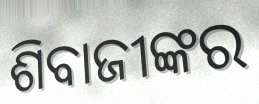
ଶିବାଜୀଙ୍କର